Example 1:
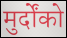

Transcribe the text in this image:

मुर्दोंको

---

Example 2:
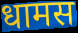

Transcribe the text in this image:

धामस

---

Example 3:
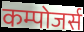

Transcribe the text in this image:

कम्पोजर्स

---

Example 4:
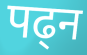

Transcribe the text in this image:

पढ्न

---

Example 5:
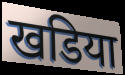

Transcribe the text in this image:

खडिया